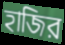
হাজির